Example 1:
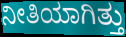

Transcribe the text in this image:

ನೀತಿಯಾಗಿತ್ತು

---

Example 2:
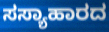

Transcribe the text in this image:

ಸಸ್ಯಾಹಾರದ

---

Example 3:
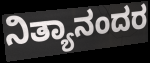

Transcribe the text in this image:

ನಿತ್ಯಾನಂದರ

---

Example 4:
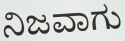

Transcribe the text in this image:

ನಿಜವಾಗು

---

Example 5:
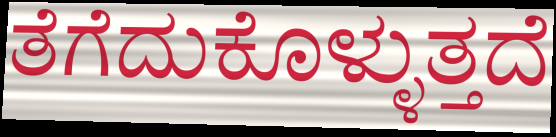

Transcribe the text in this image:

ತೆಗೆದುಕೊಳ್ಳುತ್ತದೆ